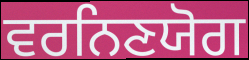
ਵਰਨਿਣਯੋਗ